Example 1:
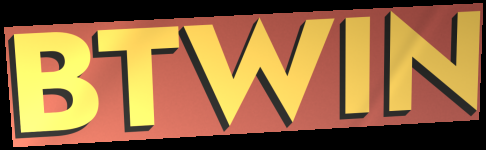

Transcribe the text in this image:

BTWIN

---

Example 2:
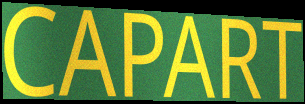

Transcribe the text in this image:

CAPART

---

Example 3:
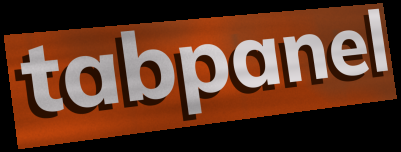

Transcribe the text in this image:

tabpanel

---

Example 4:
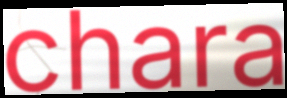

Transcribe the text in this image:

chara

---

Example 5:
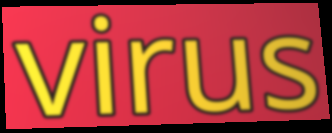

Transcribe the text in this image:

virus